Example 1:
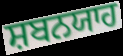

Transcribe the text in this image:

ਸ਼ਬਨਯਾਹ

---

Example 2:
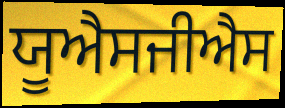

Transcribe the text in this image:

ਯੂਐਸਜੀਐਸ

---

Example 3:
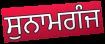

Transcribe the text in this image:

ਸੁਨਾਮਗੰਜ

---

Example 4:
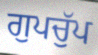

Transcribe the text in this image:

ਗੁਪਚੁੱਪ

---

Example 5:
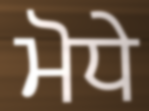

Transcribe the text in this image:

ਮੋਧੇ